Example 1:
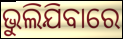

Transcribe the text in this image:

ଭୁଲିଯିବାରେ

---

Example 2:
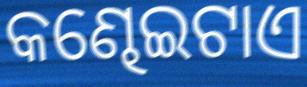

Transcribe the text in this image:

କଣ୍ଢେଇଟାଏ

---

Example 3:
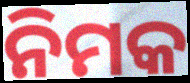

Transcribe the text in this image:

ନିମକ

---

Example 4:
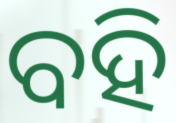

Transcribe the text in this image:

ବହି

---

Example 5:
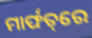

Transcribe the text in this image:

ମାର୍ଫତ୍‌ରେ